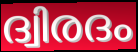
ദ്വിരദം